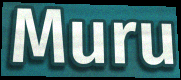
Muru